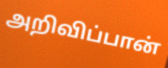
அறிவிப்பான்